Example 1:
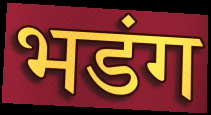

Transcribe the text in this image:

भडंग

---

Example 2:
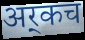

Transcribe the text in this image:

अर्कच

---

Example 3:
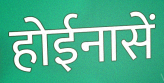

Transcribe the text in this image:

होईनासें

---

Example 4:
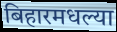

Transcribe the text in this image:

बिहारमधल्या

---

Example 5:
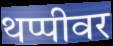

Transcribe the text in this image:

थप्पीवर